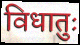
विधातुः